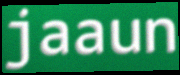
jaaun